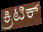
ಕ್ರಿಟಿಕ್